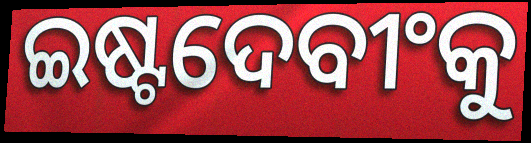
ଇଷ୍ଟଦେବୀଂକୁ